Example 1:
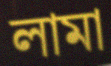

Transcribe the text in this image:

লামা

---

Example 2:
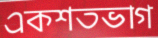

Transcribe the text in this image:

একশতভাগ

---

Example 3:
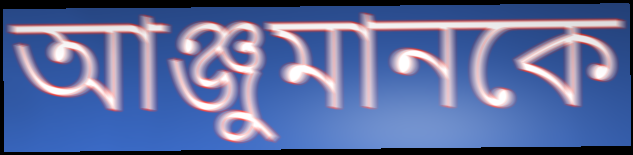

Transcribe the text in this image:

আঞ্জুমানকে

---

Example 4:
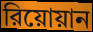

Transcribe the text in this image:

রিয়োয়ান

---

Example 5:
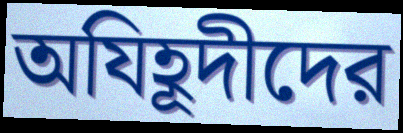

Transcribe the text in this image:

অযিহূদীদের